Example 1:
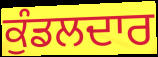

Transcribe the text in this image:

ਕੁੰਡਲਦਾਰ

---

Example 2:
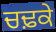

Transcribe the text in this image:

ਚਢ਼ਕੇ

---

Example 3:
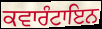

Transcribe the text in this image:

ਕਵਾਰੰਟਾਇਨ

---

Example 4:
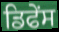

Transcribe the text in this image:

ਡਿਫੇਂਸ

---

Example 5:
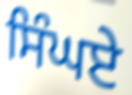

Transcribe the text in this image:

ਸਿੰਘਏ